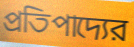
প্রতিপাদ্যের